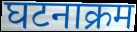
घटनाक्रम